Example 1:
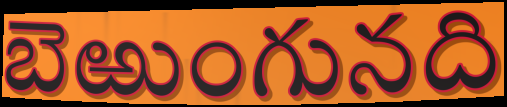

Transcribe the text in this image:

బెఱుంగునది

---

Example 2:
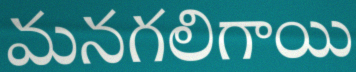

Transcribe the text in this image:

మనగలిగాయి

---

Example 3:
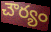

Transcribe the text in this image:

చౌర్యం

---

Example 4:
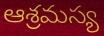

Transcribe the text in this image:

ఆశ్రమస్య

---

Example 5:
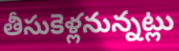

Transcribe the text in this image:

తీసుకెళ్లనున్నట్లు